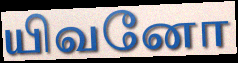
யிவனோ